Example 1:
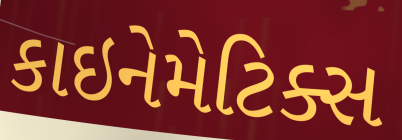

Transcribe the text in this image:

કાઇનેમેટિક્સ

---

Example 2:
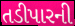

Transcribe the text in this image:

તડીપારની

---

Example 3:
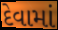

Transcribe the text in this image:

દેવામાં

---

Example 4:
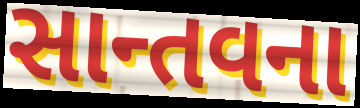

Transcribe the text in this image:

સાન્તવના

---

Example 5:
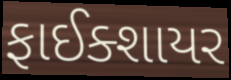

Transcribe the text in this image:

ફાઈક્શાયર